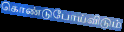
கொண்டுபோய்விடும்